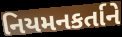
નિયમનકર્તાને